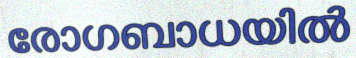
രോഗബാധയിൽ